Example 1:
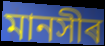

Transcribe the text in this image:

মানসীৰ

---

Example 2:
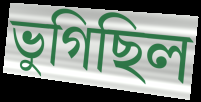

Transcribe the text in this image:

ভুগিছিল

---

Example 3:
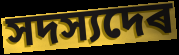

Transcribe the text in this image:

সদস্যদেৰ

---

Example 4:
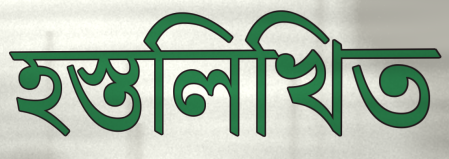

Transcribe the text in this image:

হস্তলিখিত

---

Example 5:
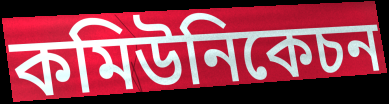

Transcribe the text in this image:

কমিউনিকেচন